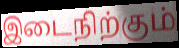
இடைநிற்கும்